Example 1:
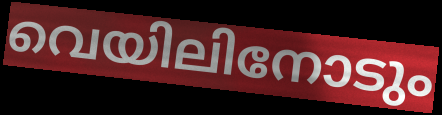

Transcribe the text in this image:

വെയിലിനോടും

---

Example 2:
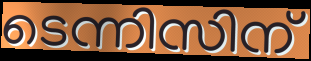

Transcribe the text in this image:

ടെന്നിസിന്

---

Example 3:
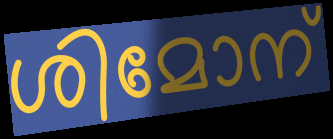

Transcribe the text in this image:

ശിമോന്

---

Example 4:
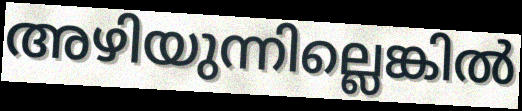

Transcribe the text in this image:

അഴിയുന്നില്ലെങ്കിൽ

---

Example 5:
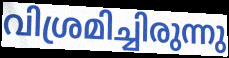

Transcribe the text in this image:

വിശ്രമിച്ചിരുന്നു